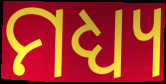
ମଧ୍ୟ୍ୟ